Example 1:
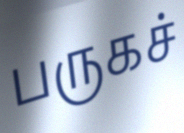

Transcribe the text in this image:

பருகச்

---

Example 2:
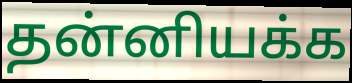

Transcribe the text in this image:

தன்னியக்க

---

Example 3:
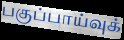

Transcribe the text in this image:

பகுப்பாய்வுக்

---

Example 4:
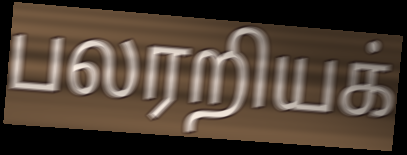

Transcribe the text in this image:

பலரறியக்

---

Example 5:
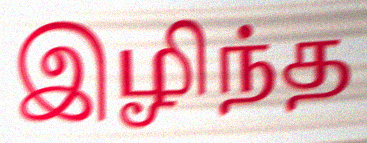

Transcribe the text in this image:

இழிந்த